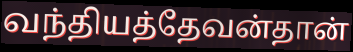
வந்தியத்தேவன்தான்